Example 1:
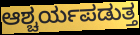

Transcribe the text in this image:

ಆಶ್ಚರ್ಯಪಡುತ್ತ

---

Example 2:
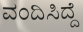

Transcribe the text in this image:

ವಂದಿಸಿದ್ದೆ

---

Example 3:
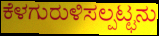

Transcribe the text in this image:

ಕೆಳಗುರುಳಿಸಲ್ಪಟ್ಟನು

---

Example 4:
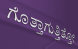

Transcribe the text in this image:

ಗೊತ್ತಾಗುತ್ತಿತ್ತೋ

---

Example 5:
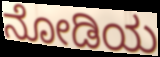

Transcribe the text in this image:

ನೋಡಿಯ